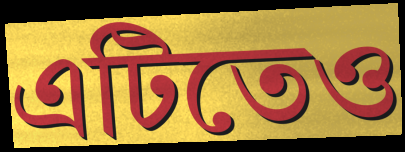
এটিতেও